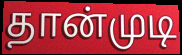
தான்முடி